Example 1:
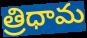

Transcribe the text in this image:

త్రిధామ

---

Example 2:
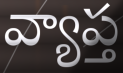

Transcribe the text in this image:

వ్యాప్త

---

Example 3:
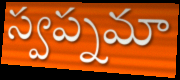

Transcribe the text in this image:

స్వప్నమా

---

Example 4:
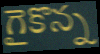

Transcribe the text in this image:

గైకొన్న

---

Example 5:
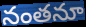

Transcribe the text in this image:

నంతనూ